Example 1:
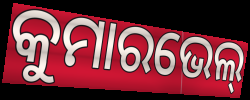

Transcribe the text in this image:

କୁମାରଭେଲ୍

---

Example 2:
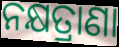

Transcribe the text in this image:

ନକ୍ଷତ୍ରାଣା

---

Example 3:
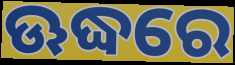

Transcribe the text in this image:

ଊଦ୍ଧରେ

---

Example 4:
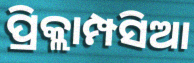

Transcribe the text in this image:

ପ୍ରିକ୍ଲାମ୍ପସିଆ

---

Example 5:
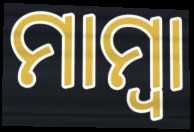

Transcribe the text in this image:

ମାମ୍ଵା